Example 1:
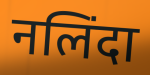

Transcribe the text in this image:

नलिंदा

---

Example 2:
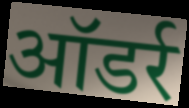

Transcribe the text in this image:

ऑडर्र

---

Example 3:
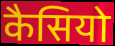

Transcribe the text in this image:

कैसियो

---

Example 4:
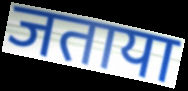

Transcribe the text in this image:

जताया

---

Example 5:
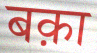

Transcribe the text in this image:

बक़ा